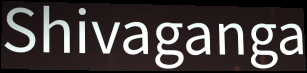
Shivaganga